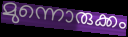
മുന്നൊരുക്കം